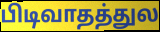
பிடிவாதத்துல